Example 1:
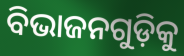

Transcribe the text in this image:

ବିଭାଜନଗୁଡ଼ିକୁ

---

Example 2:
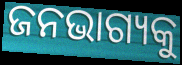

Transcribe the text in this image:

ଜନଭାଗ୍ୟକୁ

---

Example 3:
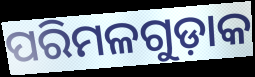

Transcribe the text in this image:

ପରିମଳଗୁଡ଼ାକ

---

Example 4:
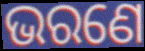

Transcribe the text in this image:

ଭରଣେ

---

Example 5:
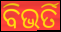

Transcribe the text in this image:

ବିଭର୍ତି